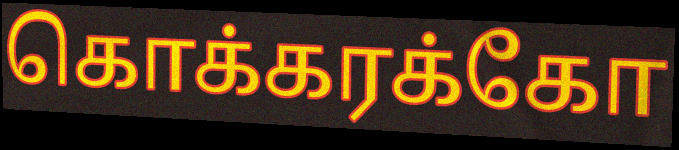
கொக்கரக்கோ